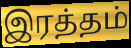
இரத்தம்